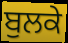
ਬੁਲਕੇ